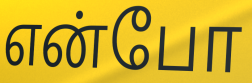
என்போ